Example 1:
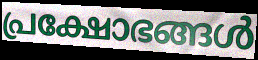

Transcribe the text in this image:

പ്രക്ഷോഭങ്ങൾ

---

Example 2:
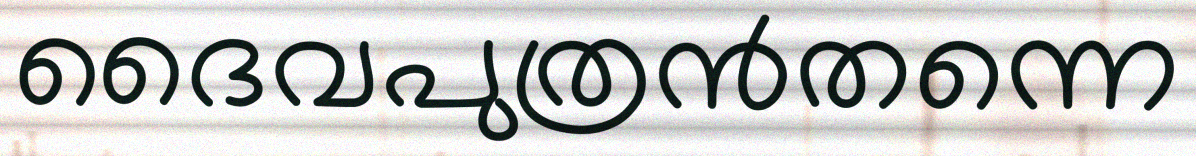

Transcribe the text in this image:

ദൈവപുത്രൻതന്നെ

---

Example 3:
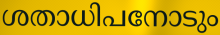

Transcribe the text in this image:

ശതാധിപനോടും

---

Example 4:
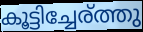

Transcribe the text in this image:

കൂട്ടിച്ചേര്ത്തു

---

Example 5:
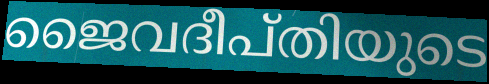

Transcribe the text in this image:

ജൈവദീപ്തിയുടെ